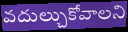
వదుల్చుకోవాలని